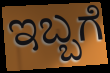
ಇಬ್ಬಗೆ